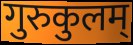
गुरुकुलम्